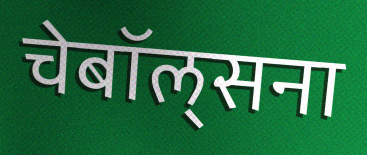
चेबॉल्सना